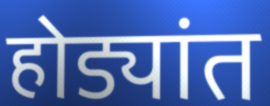
होड्यांत